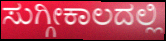
ಸುಗ್ಗೀಕಾಲದಲ್ಲಿ